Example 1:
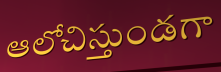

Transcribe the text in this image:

ఆలోచిస్తుండగా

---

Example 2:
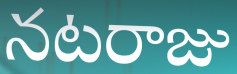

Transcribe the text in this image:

నటరాజు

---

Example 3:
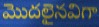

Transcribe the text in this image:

మొదలైనవిగా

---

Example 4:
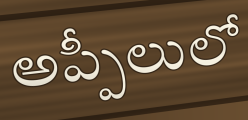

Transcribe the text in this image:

అప్పీలులో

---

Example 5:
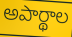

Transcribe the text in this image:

అపార్థాల